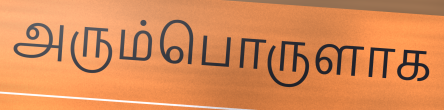
அரும்பொருளாக